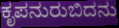
ಕೃಪನುರುಬಿದನು